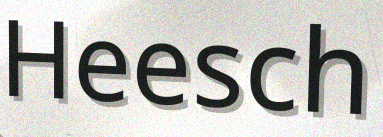
Heesch